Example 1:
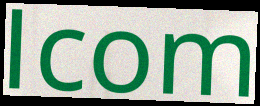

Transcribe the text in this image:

Icom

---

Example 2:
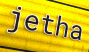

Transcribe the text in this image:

jetha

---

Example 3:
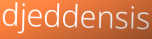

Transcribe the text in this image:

djeddensis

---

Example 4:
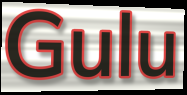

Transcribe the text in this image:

Gulu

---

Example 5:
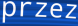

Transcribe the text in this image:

przez